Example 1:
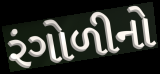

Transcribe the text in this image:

રંગોળીનો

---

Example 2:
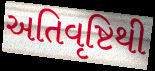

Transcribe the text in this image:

અતિવૃષ્ટિથી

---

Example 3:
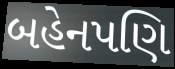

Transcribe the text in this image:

બહેનપણિ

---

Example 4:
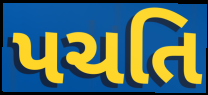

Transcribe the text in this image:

પચતિ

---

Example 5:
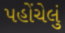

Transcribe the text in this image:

પહોંચેલું